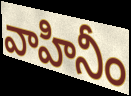
వాహినీం